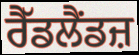
ਰੈੱਡਲੈਂਡਜ਼